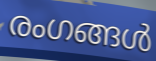
രംഗങ്ങൾ